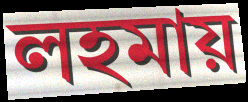
লহমায়